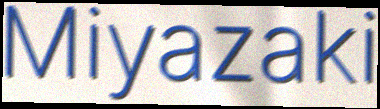
Miyazaki